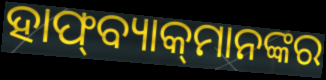
ହାଫ୍‍ବ୍ୟାକ୍‍ମାନଙ୍କର